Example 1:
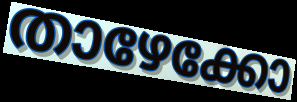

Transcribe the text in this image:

താഴേക്കോ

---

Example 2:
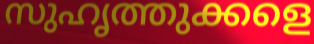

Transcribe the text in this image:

സുഹൃത്തുക്കളെ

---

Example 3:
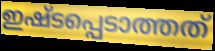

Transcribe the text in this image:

ഇഷ്ടപ്പെടാത്തത്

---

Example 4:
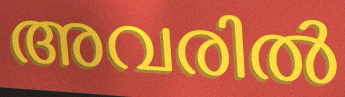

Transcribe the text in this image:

അവരിൽ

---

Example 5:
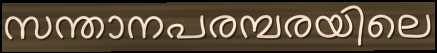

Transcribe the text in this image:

സന്താനപരമ്പരയിലെ